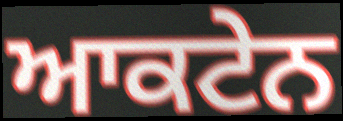
ਆਕਟੇਨ